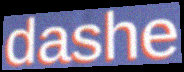
dashe